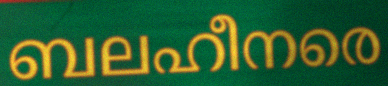
ബലഹീനരെ